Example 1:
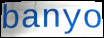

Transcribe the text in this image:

banyo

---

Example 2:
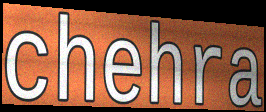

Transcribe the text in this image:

chehra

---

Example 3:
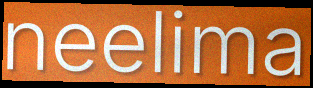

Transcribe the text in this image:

neelima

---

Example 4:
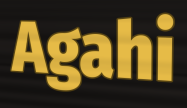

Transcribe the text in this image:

Agahi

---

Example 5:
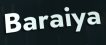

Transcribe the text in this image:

Baraiya